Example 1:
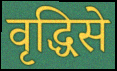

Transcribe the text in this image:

वृद्धिसे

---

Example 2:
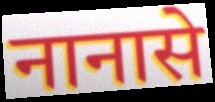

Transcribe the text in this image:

नानासे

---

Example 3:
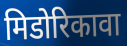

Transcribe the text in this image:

मिडोरिकावा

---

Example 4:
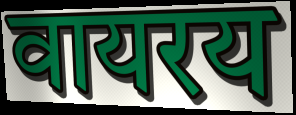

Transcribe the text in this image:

वायरय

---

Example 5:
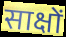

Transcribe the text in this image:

साक्षों